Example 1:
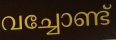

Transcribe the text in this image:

വച്ചോണ്ട്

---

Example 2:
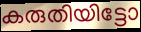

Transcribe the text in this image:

കരുതിയിട്ടോ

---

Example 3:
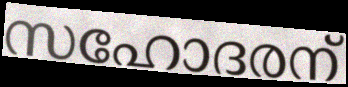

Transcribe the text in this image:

സഹോദരന്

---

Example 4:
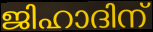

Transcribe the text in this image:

ജിഹാദിന്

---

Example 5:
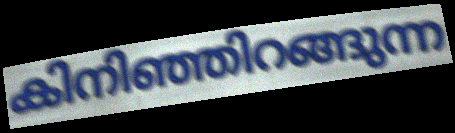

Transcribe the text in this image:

കിനിഞ്ഞിറങ്ങുന്ന